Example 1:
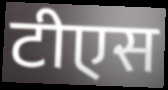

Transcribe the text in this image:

टीएस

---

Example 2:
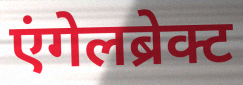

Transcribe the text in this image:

एंगेलब्रेक्ट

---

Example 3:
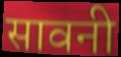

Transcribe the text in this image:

सावनी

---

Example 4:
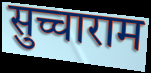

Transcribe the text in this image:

सुच्चाराम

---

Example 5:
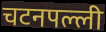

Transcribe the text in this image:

चटनपल्ली